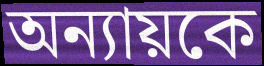
অন্যায়কে